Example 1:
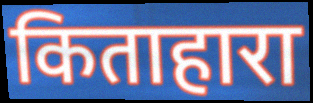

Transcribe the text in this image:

किताहारा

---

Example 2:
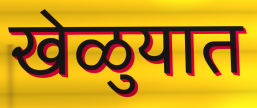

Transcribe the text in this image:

खेळुयात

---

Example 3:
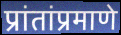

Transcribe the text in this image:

प्रांतांप्रमाणे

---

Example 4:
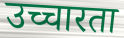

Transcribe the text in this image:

उच्चारता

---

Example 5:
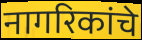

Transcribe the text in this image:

नागरिकांचे